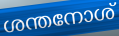
ശന്തനോശ്